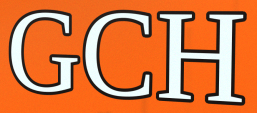
GCH